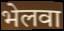
भेलवा